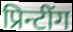
प्रिन्टींग